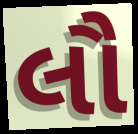
લૌ